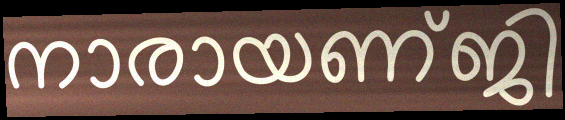
നാരായണ്ജി